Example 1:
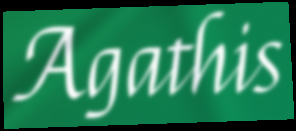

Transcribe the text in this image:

Agathis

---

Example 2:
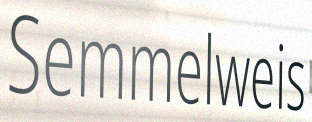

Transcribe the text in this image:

Semmelweis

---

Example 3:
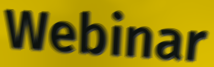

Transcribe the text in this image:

Webinar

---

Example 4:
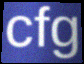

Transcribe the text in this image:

cfg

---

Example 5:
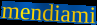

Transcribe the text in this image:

mendiami